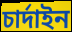
চাৰ্দাইন